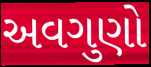
અવગુણો